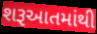
શરૂઆતમાંથી